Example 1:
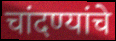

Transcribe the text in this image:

चांदण्यांचे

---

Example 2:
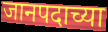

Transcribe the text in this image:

जानपदाच्या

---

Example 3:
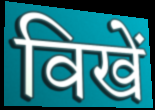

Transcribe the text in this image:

विखें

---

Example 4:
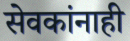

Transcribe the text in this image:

सेवकांनाही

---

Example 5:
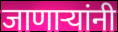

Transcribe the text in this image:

जाणाऱ्यांनी